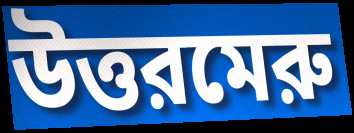
উত্তরমেরু